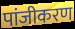
पांजीकरण